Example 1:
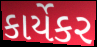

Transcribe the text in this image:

કાર્યેકર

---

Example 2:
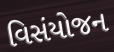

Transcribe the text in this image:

વિસંયોજન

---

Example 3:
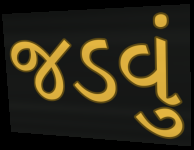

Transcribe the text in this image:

જડવું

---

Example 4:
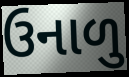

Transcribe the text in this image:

ઉનાળુ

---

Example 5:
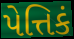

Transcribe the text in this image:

પેત્તિકં